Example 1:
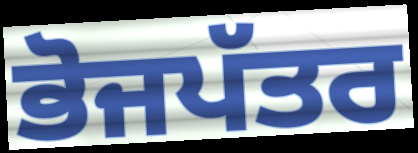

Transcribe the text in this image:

ਭੋਜਪੱਤਰ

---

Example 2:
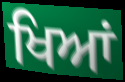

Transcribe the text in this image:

ਖਿਆਂ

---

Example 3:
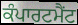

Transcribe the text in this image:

ਕੰਪਾਰਟਮੈਂਟ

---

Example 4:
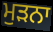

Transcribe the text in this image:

ਮੁਡ਼ਨਾ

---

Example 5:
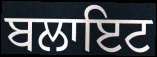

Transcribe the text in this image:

ਬਲਾਇਟ